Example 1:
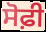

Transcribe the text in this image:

ਸੋਫ਼ੀ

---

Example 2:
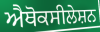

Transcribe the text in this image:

ਐਥੋਕਸੀਲੇਸ਼ਨ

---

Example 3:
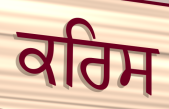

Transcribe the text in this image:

ਕਰਿਸ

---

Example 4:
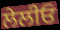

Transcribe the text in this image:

ਲੇਲੀਓ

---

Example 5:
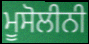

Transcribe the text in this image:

ਮੂਸੋਲੀਨੀ